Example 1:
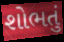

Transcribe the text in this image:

શોભતું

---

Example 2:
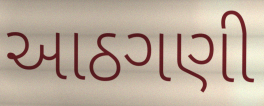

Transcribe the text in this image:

આઠગણી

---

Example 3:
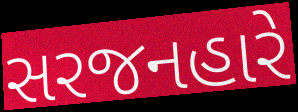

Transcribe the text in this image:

સરજનહારે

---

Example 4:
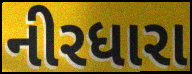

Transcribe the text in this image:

નીરધારા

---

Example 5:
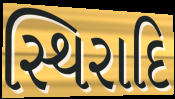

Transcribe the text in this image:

સ્થિરાદિ